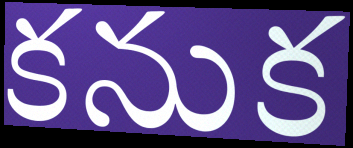
కనుక